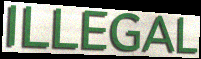
ILLEGAL